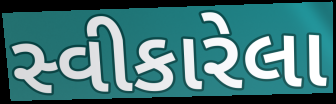
સ્વીકારેલા